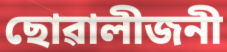
ছোৱালীজনী